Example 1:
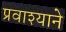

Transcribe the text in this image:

प्रवाश्याने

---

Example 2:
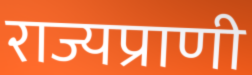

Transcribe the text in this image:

राज्यप्राणी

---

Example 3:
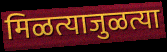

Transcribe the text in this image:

मिळत्याजुळत्या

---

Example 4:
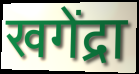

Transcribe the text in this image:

खगेंद्रा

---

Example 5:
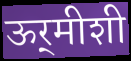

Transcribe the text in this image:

ऊर्मीशी